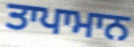
ਤਾਪਾਮਾਨ